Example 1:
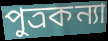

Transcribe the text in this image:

পুত্রকন্যা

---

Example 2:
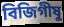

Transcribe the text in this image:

বিজিগীষু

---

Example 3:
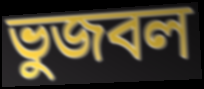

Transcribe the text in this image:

ভুজবল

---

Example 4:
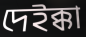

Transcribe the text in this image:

দেইক্কা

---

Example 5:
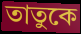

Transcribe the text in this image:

তাতুকে